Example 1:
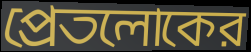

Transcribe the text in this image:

প্রেতলোকের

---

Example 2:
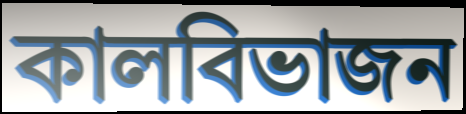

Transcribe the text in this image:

কালবিভাজন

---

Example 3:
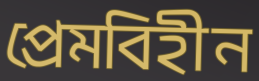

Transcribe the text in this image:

প্রেমবিহীন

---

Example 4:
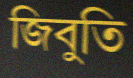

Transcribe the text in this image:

জিবুতি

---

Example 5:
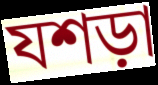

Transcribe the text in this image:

যশড়া